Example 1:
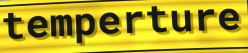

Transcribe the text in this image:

temperture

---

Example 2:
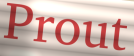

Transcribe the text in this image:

Prout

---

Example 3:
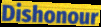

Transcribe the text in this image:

Dishonour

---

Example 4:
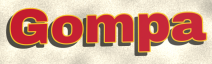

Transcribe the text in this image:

Gompa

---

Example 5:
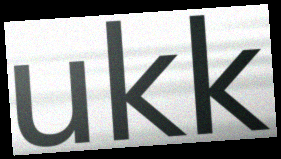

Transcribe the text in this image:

ukk